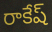
రాకేష్